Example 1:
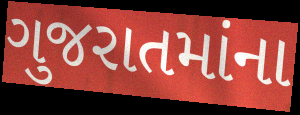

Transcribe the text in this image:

ગુજરાતમાંના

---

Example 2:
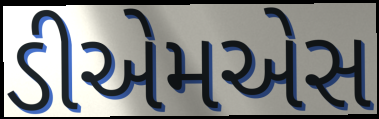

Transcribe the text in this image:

ડીએમએસ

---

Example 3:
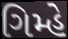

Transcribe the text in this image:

ગિમ્હે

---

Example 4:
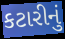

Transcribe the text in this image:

કટારીનું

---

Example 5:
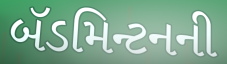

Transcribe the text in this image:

બૅડમિન્ટનની